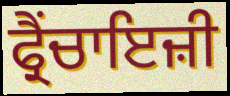
ਫ੍ਰੈਂਚਾਇਜ਼ੀ